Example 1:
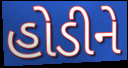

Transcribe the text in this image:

હોડીને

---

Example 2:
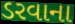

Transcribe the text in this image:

ડરવાના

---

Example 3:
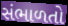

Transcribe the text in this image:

સંભાળતો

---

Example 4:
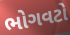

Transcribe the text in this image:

ભોગવટો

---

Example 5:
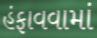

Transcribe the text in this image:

હંફાવવામાં